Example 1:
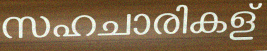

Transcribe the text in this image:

സഹചാരികള്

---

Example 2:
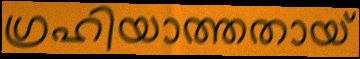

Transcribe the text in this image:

ഗ്രഹിയാത്തതായ്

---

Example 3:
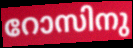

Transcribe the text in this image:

റോസിനു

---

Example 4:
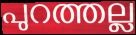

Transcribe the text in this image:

പുറത്തല്ല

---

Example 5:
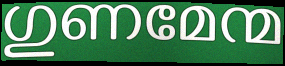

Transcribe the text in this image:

ഗുണമേന്മ